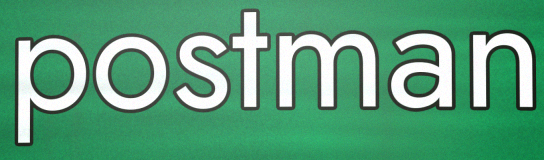
postman